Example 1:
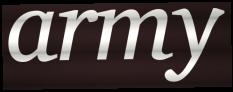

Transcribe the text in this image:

army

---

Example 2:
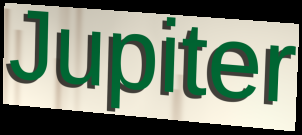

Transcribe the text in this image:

Jupiter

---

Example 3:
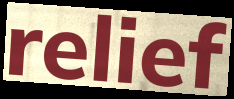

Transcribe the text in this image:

relief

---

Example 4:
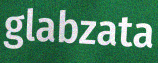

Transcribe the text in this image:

glabzata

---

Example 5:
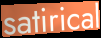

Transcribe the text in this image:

satirical